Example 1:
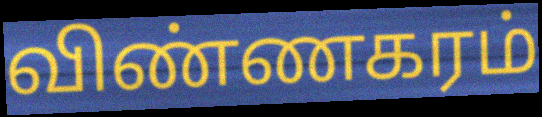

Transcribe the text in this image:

விண்ணகரம்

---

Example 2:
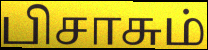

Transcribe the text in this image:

பிசாசும்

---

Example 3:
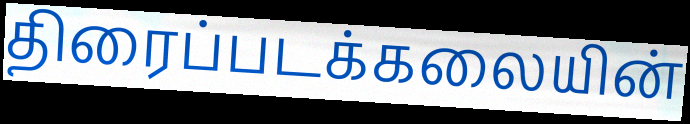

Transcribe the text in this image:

திரைப்படக்கலையின்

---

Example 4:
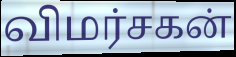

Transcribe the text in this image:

விமர்சகன்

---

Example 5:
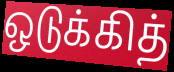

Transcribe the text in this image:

ஒடுக்கித்